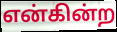
என்கின்ற